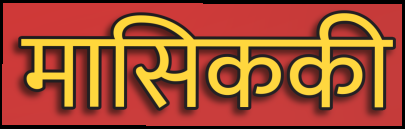
मासिककी